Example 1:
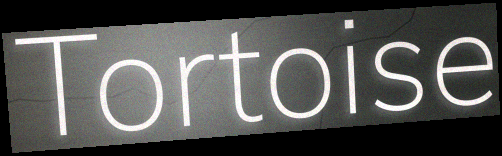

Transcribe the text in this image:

Tortoise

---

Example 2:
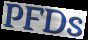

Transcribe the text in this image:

PFDs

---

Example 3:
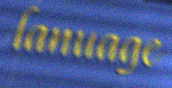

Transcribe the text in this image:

lanuage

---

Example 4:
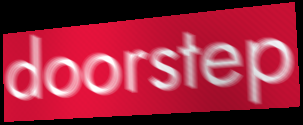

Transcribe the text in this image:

doorstep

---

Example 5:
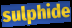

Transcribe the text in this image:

sulphide